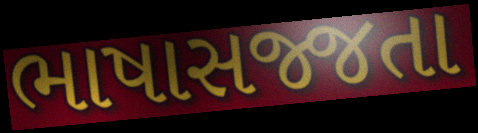
ભાષાસજ્જતા